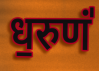
ध॒रुणं॑